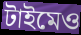
টাইমেও